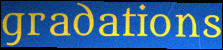
gradations